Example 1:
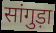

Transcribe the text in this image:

सांगुड़ा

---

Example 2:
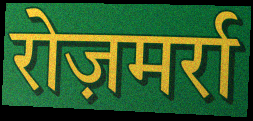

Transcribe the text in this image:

रोज़मर्रा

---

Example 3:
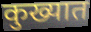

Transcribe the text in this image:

कुख्यात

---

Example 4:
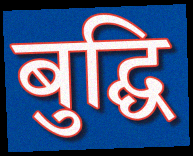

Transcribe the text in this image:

बुद्घि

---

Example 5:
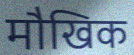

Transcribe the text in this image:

मौखिक